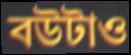
বউটাও